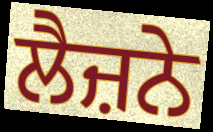
ਲੈਜ਼ਨੇ